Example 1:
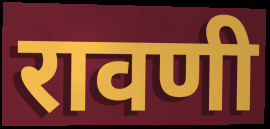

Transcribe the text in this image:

रावणी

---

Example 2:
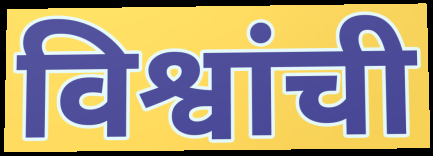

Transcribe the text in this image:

विश्वांची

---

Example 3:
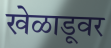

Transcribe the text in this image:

खेळाडूवर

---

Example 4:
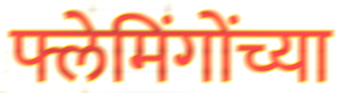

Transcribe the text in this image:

फ्लेमिंगोंच्या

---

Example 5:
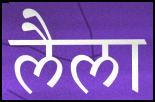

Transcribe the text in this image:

लैला